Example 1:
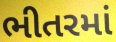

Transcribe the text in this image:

ભીતરમાં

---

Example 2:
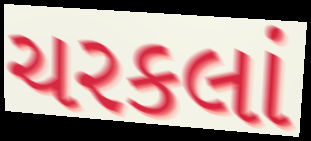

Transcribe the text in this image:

ચરકલાં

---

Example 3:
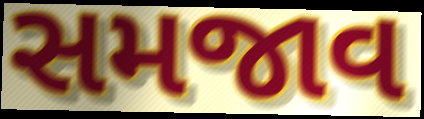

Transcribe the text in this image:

સમજાવ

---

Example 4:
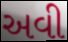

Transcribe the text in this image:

અવી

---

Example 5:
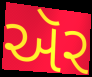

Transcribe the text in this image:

ઍર